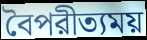
বৈপরীত্যময়